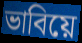
ভাবিয়ে